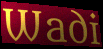
Wadi